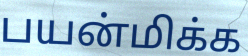
பயன்மிக்க